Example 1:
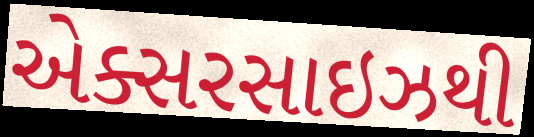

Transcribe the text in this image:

એક્સરસાઇઝથી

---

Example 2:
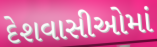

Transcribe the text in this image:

દેશવાસીઓમાં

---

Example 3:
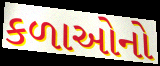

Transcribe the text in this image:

કળાઓનો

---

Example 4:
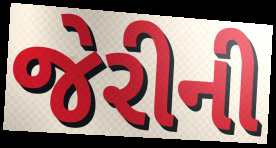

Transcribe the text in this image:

જેરીની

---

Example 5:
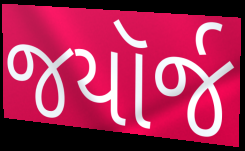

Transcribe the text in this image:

જયૉર્જ